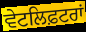
ਵੇਟਲਿਫ਼ਟਰਾਂ